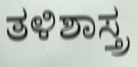
ತಳಿಶಾಸ್ತ್ರ